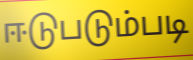
ஈடுபடும்படி